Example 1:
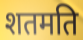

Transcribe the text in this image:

शतमति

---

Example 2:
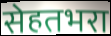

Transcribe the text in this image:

सेहतभरा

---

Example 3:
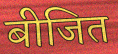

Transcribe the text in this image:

बीजित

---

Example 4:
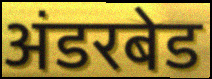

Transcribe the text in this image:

अंडरबेड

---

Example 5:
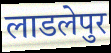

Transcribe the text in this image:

लाडलेपुर